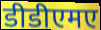
डीडीएमए